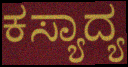
ಕಸ್ಯಾದ್ಯ